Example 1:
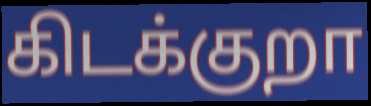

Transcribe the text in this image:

கிடக்குறா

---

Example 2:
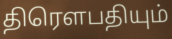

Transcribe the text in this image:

திரெளபதியும்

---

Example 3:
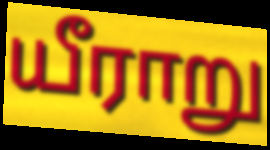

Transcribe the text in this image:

யீராறு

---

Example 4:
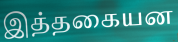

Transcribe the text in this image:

இத்தகையன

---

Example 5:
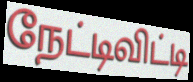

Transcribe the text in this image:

நேட்டிவிட்டி